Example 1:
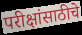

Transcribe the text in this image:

परीक्षांसाठीचे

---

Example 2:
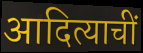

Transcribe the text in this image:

आदित्याचीं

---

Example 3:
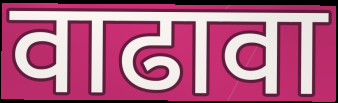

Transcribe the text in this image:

वाढावा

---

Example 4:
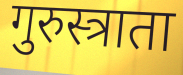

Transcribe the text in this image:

गुरुस्त्राता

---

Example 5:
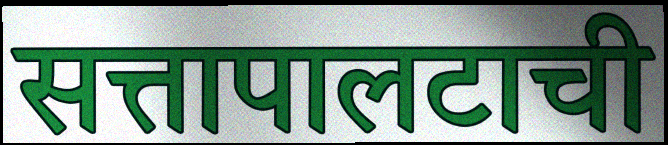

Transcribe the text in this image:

सत्तापालटाची